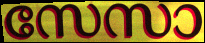
സേസാ